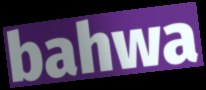
bahwa